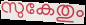
സുകേതും